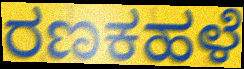
ರಣಕಹಳೆ